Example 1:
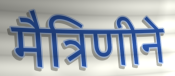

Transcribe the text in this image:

मैत्रिणीने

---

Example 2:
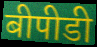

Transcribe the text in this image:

बीपीडी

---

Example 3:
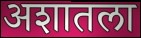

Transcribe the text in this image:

अशातला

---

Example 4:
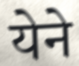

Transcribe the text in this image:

येने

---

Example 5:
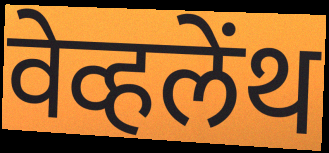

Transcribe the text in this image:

वेव्हलेंथ